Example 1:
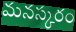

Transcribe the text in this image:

మనస్కరం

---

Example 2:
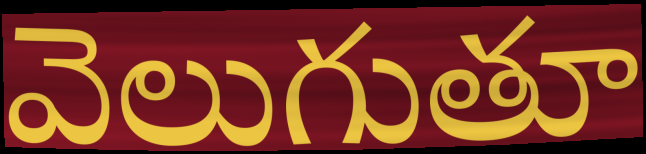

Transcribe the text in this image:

వెలుగుతూ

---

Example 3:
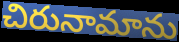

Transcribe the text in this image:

చిరునామాను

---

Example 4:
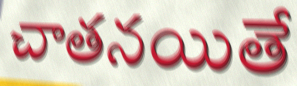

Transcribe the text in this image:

చాతనయితే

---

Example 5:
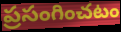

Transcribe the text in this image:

ప్రసంగించటం